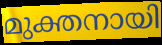
മുക്തനായി